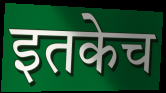
इतकेच